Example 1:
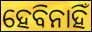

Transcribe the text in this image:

ହେବିନାହିଁ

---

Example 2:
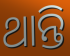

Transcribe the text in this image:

ଥାନ୍ତି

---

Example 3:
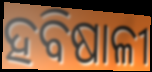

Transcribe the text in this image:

ହବିଷାଳୀ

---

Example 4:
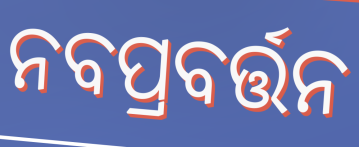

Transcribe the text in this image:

ନବପ୍ରବର୍ତ୍ତନ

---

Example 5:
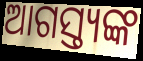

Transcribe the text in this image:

ଆଗସ୍ତ୍ୟଙ୍କ